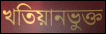
খতিয়ানভুক্ত